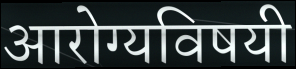
आरोग्यविषयी